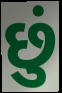
છું